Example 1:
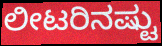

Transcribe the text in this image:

ಲೀಟರಿನಷ್ಟು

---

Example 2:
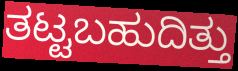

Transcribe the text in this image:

ತಟ್ಟಬಹುದಿತ್ತು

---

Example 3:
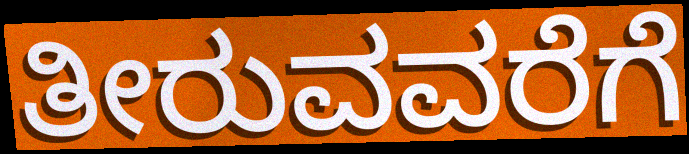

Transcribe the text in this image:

ತೀರುವವರೆಗೆ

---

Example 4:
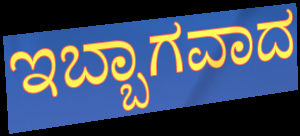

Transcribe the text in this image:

ಇಬ್ಬಾಗವಾದ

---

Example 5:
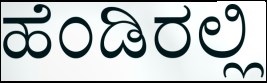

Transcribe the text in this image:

ಹೆಂಡಿರಲ್ಲಿ